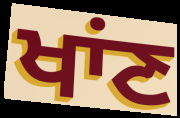
ਖਾਂਣ